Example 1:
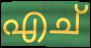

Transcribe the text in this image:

എച്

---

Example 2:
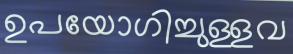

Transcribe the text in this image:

ഉപയോഗിച്ചുള്ളവ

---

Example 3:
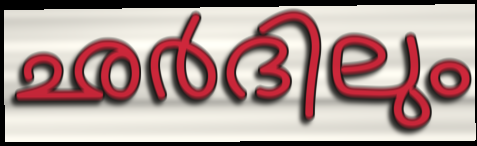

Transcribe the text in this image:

ഛർദിലും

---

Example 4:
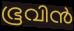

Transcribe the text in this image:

ഭൂവിൻ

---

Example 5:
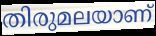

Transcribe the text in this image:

തിരുമലയാണ്